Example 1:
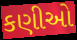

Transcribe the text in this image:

કણીઓ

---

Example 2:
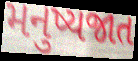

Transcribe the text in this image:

મનુષ્યજાત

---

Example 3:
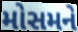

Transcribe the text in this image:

મોસમને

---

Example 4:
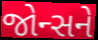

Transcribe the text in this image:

જોન્સને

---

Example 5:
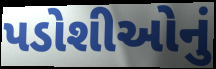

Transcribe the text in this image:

પડોશીઓનું